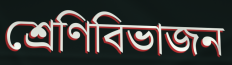
শ্রেণিবিভাজন